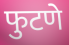
फुटणे